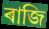
ৰাজি